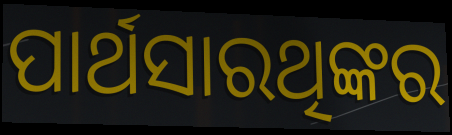
ପାର୍ଥସାରଥିଙ୍କର